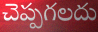
చెప్పగలదు